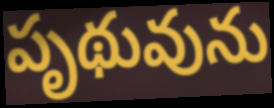
పృథువును